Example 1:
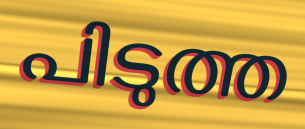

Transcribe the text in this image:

പിടുത്ത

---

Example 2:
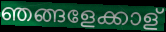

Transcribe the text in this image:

ഞങ്ങളേക്കാള്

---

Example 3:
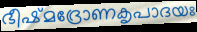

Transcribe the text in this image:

ഭീഷ്മദ്രോണകൃപാദയഃ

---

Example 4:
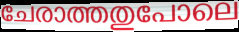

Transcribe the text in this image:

ചേരാത്തതുപോലെ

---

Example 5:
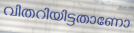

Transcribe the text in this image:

വിതറിയിട്ടതാണോ